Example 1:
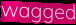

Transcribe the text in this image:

wagged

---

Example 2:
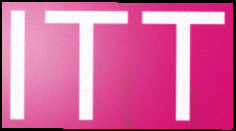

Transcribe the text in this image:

ITT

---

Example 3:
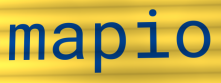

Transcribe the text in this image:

mapio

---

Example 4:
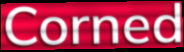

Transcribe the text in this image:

Corned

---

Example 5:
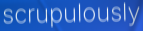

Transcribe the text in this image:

scrupulously